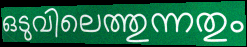
ഒടുവിലെത്തുന്നതും